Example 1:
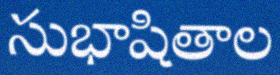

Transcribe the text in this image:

సుభాషితాల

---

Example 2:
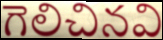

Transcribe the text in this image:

గెలిచినవి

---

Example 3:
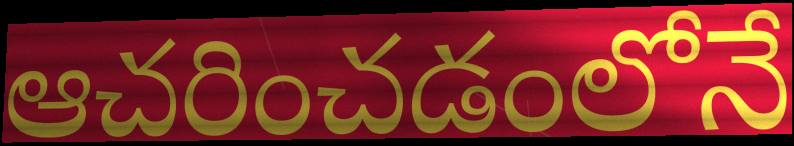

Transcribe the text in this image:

ఆచరించడంలోనే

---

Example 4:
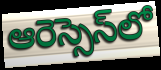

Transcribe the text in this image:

ఆరెస్సెస్‌లో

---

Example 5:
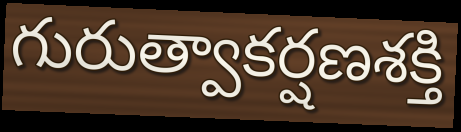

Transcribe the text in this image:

గురుత్వాకర్షణశక్తి